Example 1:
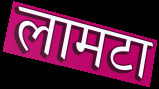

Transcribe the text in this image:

लामटा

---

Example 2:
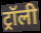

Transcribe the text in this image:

ट्रॉली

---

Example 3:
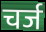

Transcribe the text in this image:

चर्ज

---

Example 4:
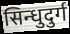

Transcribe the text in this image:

सिन्धुदुर्ग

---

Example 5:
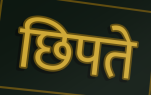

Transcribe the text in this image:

छिपते